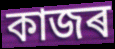
কাজৰ